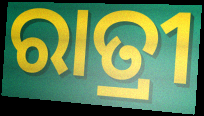
ରାତ୍ରୀ